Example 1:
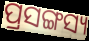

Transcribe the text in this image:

ପ୍ରସଙ୍ଗସ୍ୟ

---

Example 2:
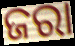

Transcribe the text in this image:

ଜରା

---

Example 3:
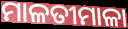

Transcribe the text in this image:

ମାଳତୀମାଳା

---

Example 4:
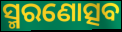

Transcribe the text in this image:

ସ୍ମରଣୋତ୍ସବ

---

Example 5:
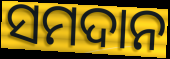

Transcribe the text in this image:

ସମଦାନ